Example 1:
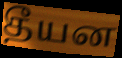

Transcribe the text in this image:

தீயன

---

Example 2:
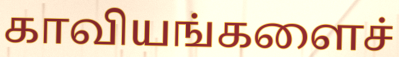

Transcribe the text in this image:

காவியங்களைச்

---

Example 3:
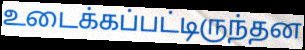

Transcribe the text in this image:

உடைக்கப்பட்டிருந்தன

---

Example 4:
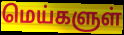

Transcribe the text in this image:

மெய்களுள்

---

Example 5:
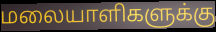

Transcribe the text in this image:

மலையாளிகளுக்கு